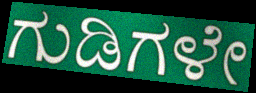
ಗುಡಿಗಳೇ